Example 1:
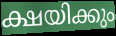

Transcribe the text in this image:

ക്ഷയിക്കും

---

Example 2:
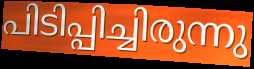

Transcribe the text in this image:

പിടിപ്പിച്ചിരുന്നു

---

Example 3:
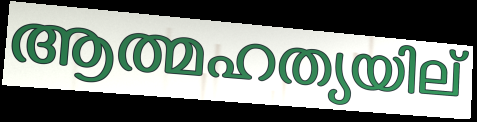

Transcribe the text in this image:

ആത്മഹത്യയില്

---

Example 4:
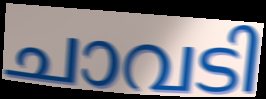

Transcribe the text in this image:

ചാവടി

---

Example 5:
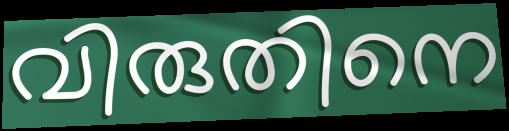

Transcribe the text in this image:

വിരുതിനെ